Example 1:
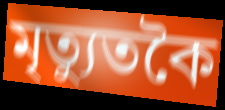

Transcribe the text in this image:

মৃত্যুতকৈ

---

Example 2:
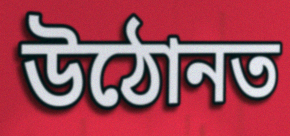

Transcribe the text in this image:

উঠোনত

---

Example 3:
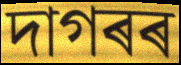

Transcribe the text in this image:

দাগৰৰ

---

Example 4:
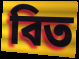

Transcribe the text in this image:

বিত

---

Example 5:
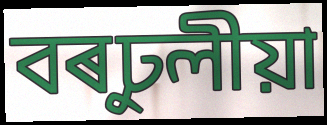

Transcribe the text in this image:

বৰঢুলীয়া